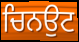
ਚਿਨਉਟ